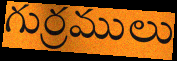
గుర్రములు